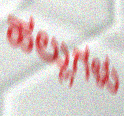
ಹಲ್ಲುಗಳು